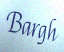
Bargh